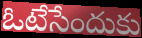
ఓటేసేందుకు